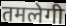
तमलेगी